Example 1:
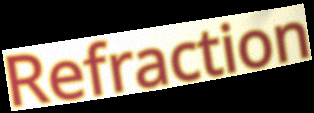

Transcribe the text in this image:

Refraction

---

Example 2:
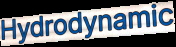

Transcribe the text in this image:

Hydrodynamic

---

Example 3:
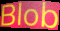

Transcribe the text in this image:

Blob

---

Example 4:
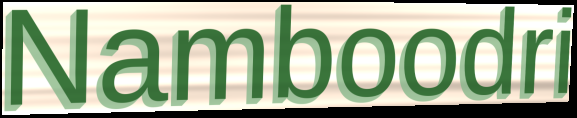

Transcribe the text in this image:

Namboodri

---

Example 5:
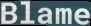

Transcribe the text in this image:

Blame